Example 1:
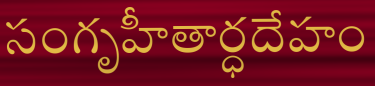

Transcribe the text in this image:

సంగృహీతార్ధదేహం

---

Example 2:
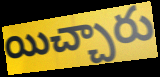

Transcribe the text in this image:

యిచ్చారు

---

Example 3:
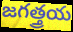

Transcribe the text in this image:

జగత్త్రయ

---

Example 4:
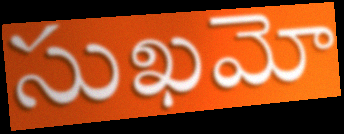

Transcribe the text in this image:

సుఖమో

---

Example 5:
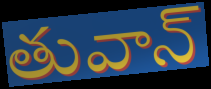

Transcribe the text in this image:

తువాన్